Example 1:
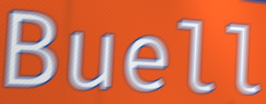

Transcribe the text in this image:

Buell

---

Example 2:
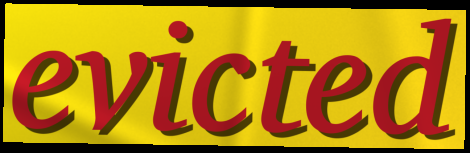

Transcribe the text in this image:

evicted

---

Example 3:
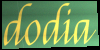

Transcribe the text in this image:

dodia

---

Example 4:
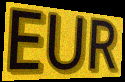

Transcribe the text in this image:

EUR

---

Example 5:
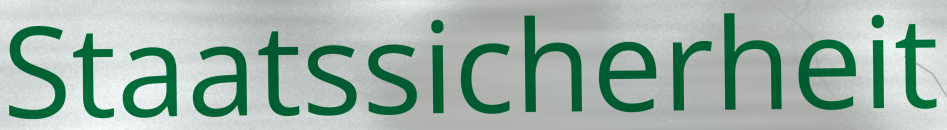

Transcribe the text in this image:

Staatssicherheit